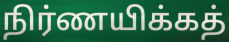
நிர்ணயிக்கத்